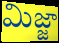
మిజ్జా